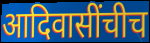
आदिवासींचीच